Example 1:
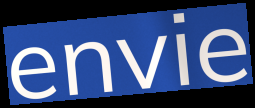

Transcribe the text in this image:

envie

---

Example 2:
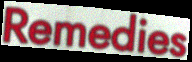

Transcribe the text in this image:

Remedies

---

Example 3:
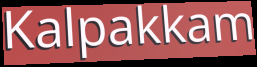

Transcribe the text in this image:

Kalpakkam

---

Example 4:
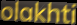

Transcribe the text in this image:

olakhti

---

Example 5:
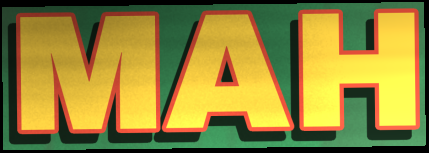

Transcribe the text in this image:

MAH